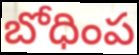
బోధింప